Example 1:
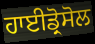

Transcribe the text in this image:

ਹਾਈਡ੍ਰੋਸੋਲ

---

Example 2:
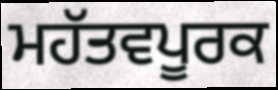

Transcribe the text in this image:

ਮਹੱਤਵਪੂਰਕ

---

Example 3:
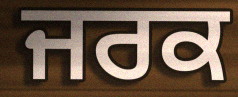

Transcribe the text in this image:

ਜਰਕ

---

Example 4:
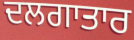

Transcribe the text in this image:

ਦਲਗਾਤਾਰ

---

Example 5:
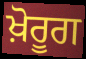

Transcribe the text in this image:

ਖ਼ੋਰੂਗ